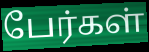
பேர்கள்